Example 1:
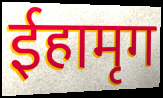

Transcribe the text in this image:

ईहामृग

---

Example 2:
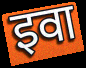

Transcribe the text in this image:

इवा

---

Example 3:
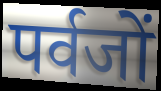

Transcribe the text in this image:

पर्वजों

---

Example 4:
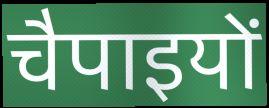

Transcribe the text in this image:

चैपाइयों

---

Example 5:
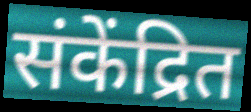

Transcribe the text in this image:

संकेंद्रित